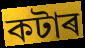
কটাৰ